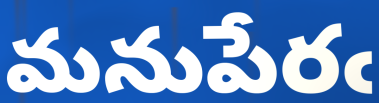
మనుపేరఁ